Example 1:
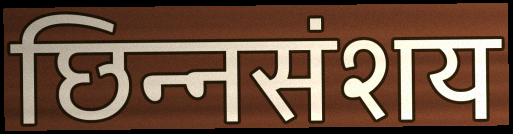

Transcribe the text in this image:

छिन्नसंशय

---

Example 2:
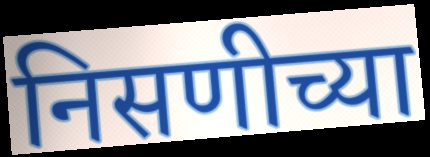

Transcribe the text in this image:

निसणीच्या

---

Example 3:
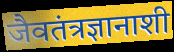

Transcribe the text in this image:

जैवतंत्रज्ञानाशी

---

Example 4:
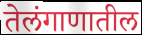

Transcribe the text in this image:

तेलंगाणातील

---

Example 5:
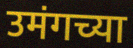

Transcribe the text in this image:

उमंगच्या